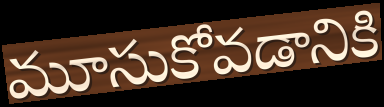
మూసుకోవడానికి